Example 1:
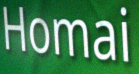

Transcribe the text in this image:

Homai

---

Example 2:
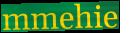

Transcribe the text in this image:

mmehie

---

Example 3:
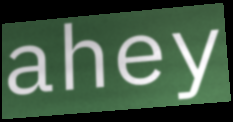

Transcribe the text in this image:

ahey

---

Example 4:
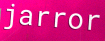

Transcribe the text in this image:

jarror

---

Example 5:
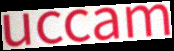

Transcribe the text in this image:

uccam